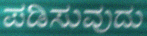
ಪಡಿಸುವುದು